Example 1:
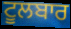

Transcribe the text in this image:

ਟੂਲਬਾਰ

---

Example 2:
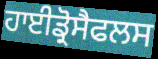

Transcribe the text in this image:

ਹਾਈਡ੍ਰੋਸੈਫਲਸ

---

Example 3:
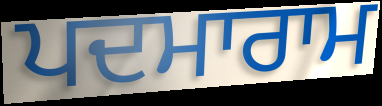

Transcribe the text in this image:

ਪਦਮਾਰਾਮ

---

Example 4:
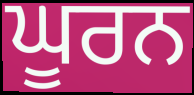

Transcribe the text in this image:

ਘੂਰਨ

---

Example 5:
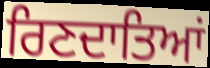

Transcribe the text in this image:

ਰਿਣਦਾਤਿਆਂ